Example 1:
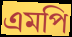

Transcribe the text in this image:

এমপি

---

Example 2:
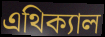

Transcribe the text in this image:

এথিক্যাল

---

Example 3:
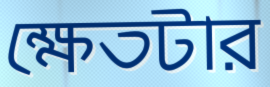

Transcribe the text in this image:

ক্ষেতটার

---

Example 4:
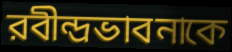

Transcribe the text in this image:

রবীন্দ্রভাবনাকে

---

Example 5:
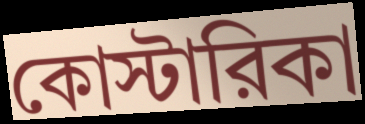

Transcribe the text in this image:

কোস্টারিকা